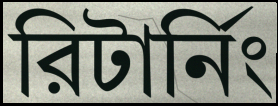
রিটার্নিং